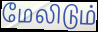
மேலிடும்